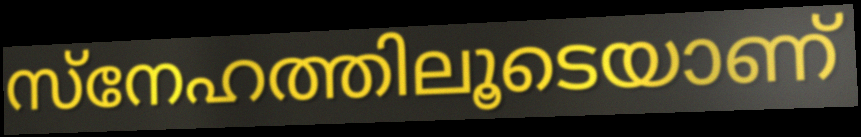
സ്നേഹത്തിലൂടെയാണ്